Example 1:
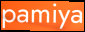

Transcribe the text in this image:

pamiya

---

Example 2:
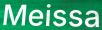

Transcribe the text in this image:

Meissa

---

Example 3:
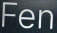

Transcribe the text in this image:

Fen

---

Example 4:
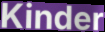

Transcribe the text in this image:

Kinder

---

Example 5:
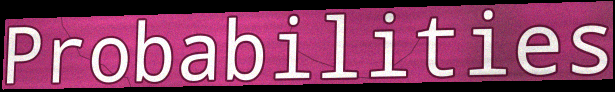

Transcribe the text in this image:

Probabilities